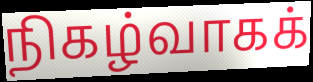
நிகழ்வாகக்